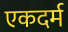
एकदर्म